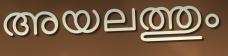
അയലത്തും